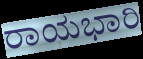
ರಾಯಭಾರಿ